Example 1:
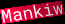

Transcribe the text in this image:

Mankiw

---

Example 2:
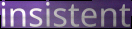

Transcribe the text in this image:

insistent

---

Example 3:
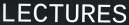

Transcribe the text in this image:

LECTURES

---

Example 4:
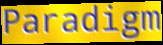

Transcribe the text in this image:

Paradigm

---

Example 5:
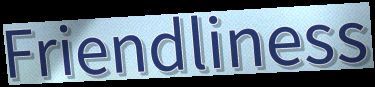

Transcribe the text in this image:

Friendliness